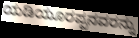
ಯಡಿಯೂರಪ್ಪನವರನ್ನು